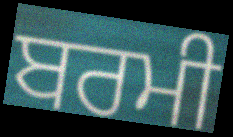
ਬਰਮੀ